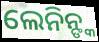
ଲେନିନ୍ଙ୍କ